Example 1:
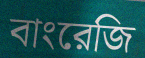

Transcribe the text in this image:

বাংরেজি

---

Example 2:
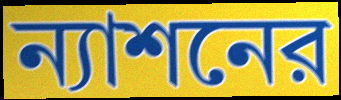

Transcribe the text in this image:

ন্যাশনের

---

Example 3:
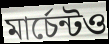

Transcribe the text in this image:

মার্চেন্টও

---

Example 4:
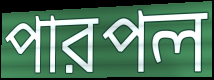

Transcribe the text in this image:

পারপল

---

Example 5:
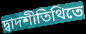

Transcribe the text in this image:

দ্বাদশীতিথিতে